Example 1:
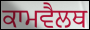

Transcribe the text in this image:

ਕਾਮਵੈਲਥ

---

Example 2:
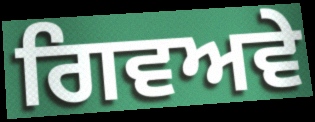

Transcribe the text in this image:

ਗਿਵਅਵੇ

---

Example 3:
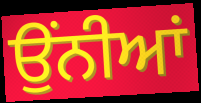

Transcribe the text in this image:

ਉੰਨੀਆਂ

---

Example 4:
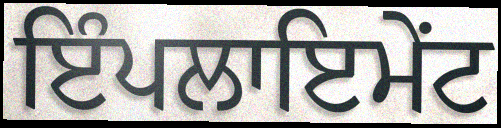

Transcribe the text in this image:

ਇੰਪਲਾਇਮੇਂਟ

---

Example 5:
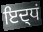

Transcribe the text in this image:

ਇਦ੍ਧਂ